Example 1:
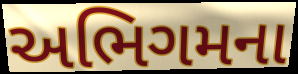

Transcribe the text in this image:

અભિગમના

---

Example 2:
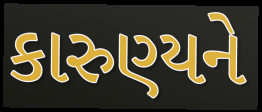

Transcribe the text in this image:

કારુણ્યને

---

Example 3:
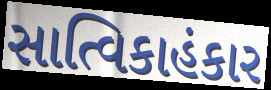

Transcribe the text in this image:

સાત્વિકાહંકાર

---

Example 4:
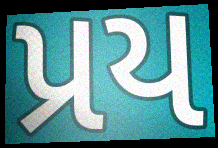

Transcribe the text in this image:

પ્રય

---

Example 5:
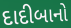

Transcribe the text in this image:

દાદીબાનો